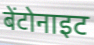
बेंटोनाइट